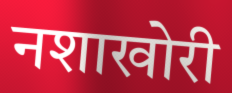
नशाखोरी